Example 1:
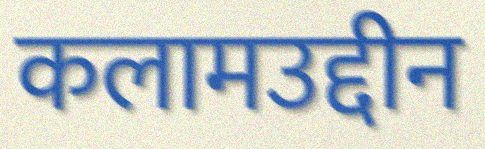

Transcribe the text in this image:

कलामउद्दीन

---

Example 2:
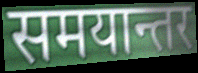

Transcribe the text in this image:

समयान्तर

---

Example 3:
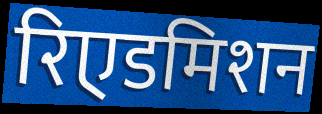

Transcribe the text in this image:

रिएडमिशन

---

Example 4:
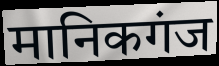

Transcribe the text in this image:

मानिकगंज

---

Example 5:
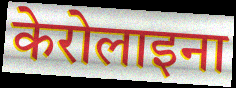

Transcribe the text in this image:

केरोलाइना